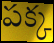
పక్క